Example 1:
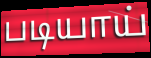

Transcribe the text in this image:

படியாய்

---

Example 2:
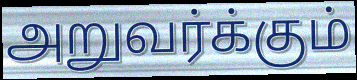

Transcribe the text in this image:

அறுவர்க்கும்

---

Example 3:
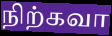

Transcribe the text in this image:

நிற்கவா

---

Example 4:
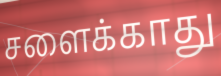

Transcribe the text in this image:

சளைக்காது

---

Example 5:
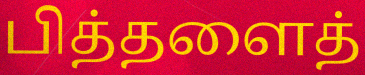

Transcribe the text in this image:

பித்தளைத்